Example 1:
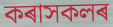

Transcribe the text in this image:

কৰাসকলৰ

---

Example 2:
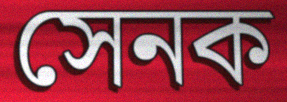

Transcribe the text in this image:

সেনক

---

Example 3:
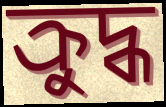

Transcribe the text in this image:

ক্ৰুদ্ধ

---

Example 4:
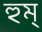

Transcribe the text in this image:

হুম্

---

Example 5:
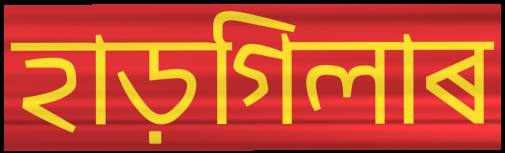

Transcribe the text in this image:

হাড়গিলাৰ